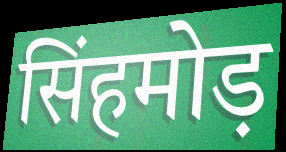
सिंहमोड़